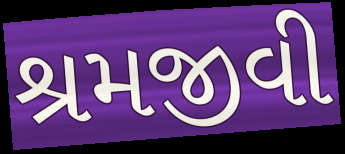
શ્રમજીવી